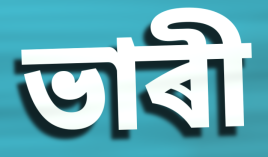
ভাৰী